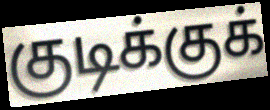
குடிக்குக்